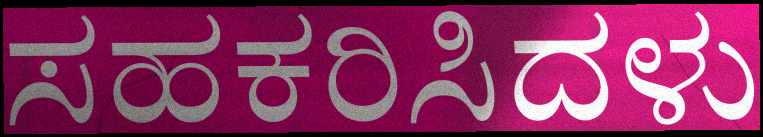
ಸಹಕರಿಸಿದಳು